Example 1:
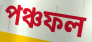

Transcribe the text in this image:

পঞ্চফল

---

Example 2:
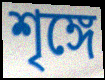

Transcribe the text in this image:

শৃঙ্গে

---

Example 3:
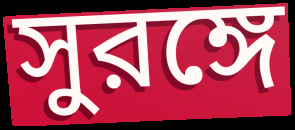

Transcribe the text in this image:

সুরঙ্গে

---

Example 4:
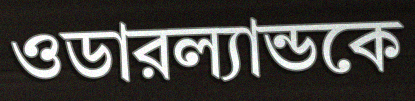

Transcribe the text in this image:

ওডারল্যান্ডকে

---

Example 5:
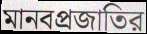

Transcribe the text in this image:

মানবপ্রজাতির